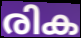
രിക